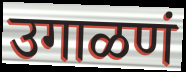
उगाळणं